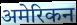
अमेरिकन